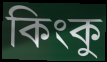
কিংকু